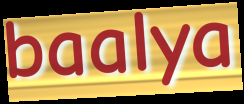
baalya